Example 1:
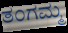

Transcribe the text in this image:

ತಂಗಮ್ಮ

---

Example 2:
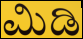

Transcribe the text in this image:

ಮಿಡಿ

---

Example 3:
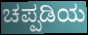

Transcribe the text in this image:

ಚಪ್ಪಡಿಯ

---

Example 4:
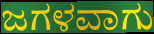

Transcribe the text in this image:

ಜಗಳವಾಗು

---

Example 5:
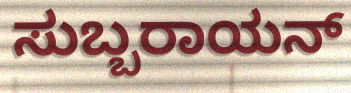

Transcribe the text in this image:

ಸುಬ್ಬರಾಯನ್